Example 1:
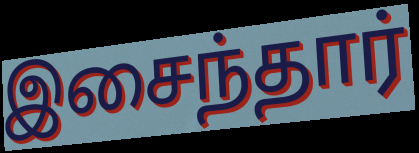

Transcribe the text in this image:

இசைந்தார்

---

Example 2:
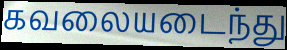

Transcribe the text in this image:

கவலையடைந்து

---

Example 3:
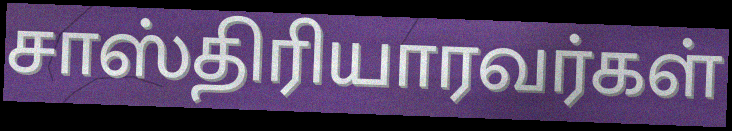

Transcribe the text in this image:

சாஸ்திரியாரவர்கள்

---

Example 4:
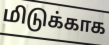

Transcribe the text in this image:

மிடுக்காக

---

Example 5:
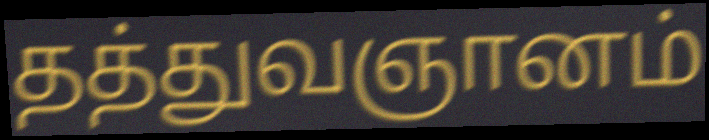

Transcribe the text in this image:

தத்துவஞானம்